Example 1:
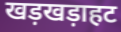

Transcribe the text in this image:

खड़खड़ाहट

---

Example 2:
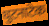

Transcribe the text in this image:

घुटनाटेक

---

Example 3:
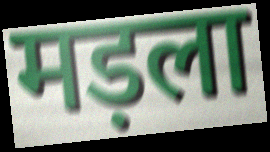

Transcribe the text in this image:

मड़ला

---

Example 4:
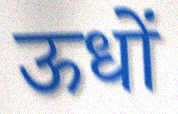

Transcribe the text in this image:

ऊधों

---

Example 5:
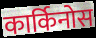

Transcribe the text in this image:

कार्किनोस